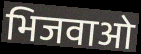
भिजवाओ